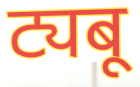
ट्यबू